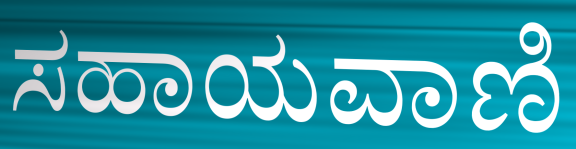
ಸಹಾಯವಾಣಿ